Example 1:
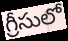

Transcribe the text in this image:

గ్రీసులో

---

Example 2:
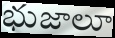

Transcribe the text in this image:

భుజాలూ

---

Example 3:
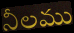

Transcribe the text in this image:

నీలము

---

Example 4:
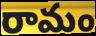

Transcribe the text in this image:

రామం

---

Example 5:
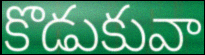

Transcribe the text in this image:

కొడుకువా